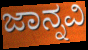
ಜಾನ್ನವಿ